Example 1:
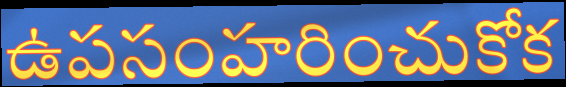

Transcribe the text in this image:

ఉపసంహరించుకోక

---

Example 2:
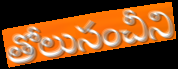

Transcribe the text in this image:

తోలుసంచీని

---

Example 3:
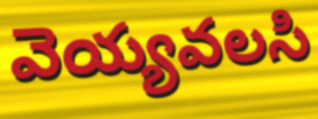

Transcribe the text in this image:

వెయ్యవలసి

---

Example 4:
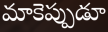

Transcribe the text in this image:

మాకెప్పుడూ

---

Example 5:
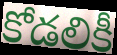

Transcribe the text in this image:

కోడలికీ